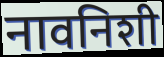
नावनिशी